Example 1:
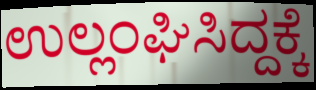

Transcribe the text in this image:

ಉಲ್ಲಂಘಿಸಿದ್ದಕ್ಕೆ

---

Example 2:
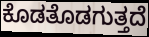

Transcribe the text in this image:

ಕೊಡತೊಡಗುತ್ತದೆ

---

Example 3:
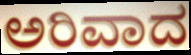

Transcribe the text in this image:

ಅರಿವಾದ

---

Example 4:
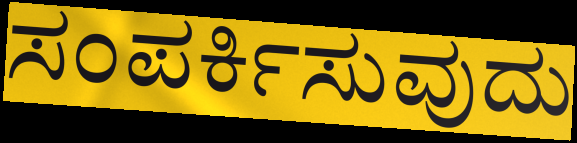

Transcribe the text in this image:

ಸಂಪರ್ಕಿಸುವುದು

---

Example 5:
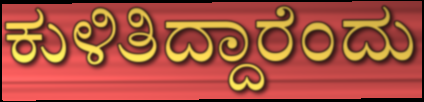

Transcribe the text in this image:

ಕುಳಿತಿದ್ದಾರೆಂದು